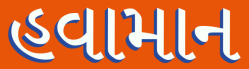
હવામાન